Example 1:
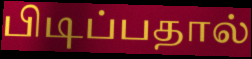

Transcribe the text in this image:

பிடிப்பதால்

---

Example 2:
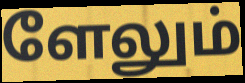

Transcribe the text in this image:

ளேலும்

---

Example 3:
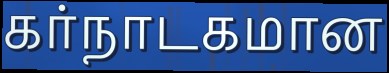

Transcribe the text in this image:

கர்நாடகமான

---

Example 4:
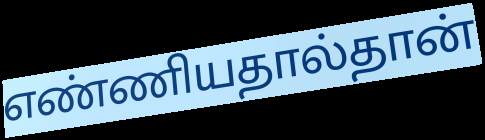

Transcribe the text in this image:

எண்ணியதால்தான்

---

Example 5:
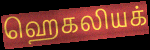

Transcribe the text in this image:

ஹெகலியக்